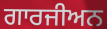
ਗਾਰਜੀਅਨ